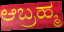
ಆಬ್ರಹ್ಮ